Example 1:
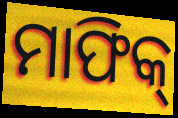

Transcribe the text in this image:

ମାଫିକ୍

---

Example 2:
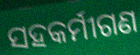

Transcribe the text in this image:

ସହକର୍ମୀଗଣ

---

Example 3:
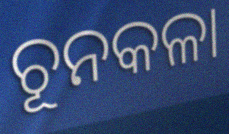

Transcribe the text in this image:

ଚୂନକଳା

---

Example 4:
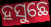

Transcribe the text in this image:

ହସୁଛେ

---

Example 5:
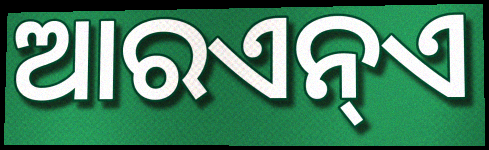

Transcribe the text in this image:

ଆରଏନ୍ଏ